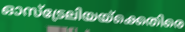
ഓസ്ട്രേലിയയ്ക്കെതിരെ